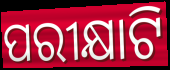
ପରୀକ୍ଷାଟି